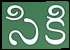
సికి